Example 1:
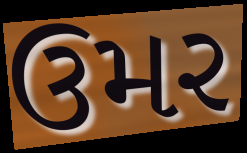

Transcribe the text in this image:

ઉમર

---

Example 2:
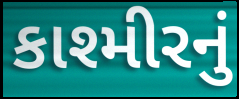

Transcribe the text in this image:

કાશ્મીરનું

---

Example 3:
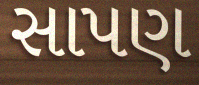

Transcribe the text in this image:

સાપણ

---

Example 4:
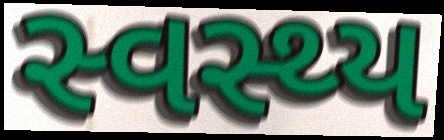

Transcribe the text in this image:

સ્વસ્થ્ય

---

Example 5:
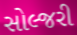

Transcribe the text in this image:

સોલ્જરી